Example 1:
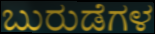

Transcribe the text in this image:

ಬುರುಡೆಗಳ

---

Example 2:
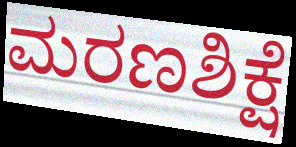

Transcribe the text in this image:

ಮರಣಶಿಕ್ಷೆ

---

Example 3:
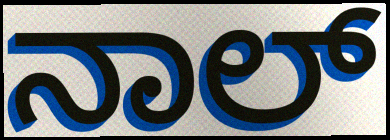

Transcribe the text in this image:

ನಾಲ್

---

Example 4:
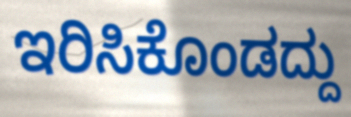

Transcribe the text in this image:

ಇರಿಸಿಕೊಂಡದ್ದು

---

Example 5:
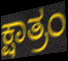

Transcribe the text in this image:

ಕ್ಷಾತ್ರಂ